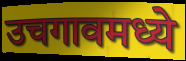
उचगावमध्ये